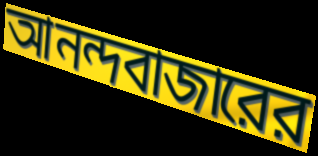
আনন্দবাজারের